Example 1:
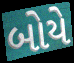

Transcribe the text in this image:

બોયે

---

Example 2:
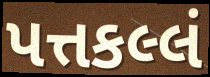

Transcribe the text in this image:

પત્તકલ્લં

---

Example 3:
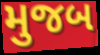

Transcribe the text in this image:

મુજબ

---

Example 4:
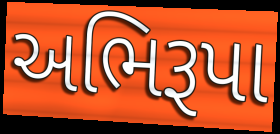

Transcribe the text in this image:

અભિરૂપા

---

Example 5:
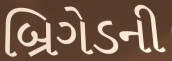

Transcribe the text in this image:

બ્રિગેડની